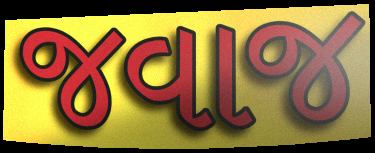
જવાજ